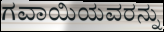
ಗವಾಯಿಯವರನ್ನು